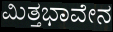
ಮಿತ್ತಭಾವೇನ